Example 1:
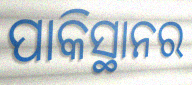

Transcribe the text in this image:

ପାକିସ୍ଥାନର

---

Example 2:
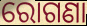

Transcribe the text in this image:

ରୋଗଣା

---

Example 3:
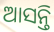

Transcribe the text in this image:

ଆସନ୍ତି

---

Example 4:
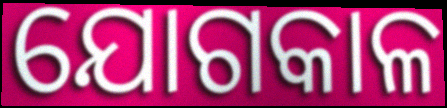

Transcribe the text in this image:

ଯୋଗକାଳ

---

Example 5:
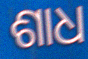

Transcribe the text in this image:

ଶାଧ